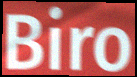
Biro